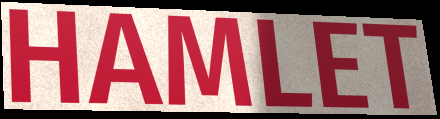
HAMLET